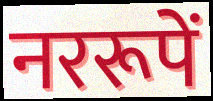
नररूपें